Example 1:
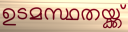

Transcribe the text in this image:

ഉടമസ്ഥതയ്ക്ക്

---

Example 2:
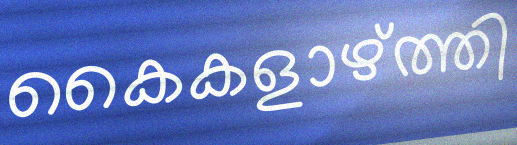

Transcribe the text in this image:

കൈകളാഴ്ത്തി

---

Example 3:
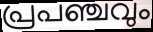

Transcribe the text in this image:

പ്രപഞ്ചവും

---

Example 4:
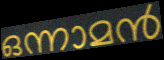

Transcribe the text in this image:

ഒന്നാമൻ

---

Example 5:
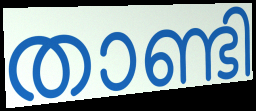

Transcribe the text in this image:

താണ്ടി